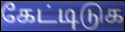
கேட்டிடுக